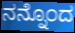
ನನ್ನೊಂದ